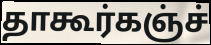
தாகூர்கஞ்ச்